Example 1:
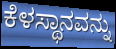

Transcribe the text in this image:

ಕೆಳಸ್ಥಾನವನ್ನು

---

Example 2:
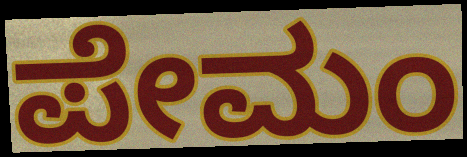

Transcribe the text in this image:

ಪೇಮಂ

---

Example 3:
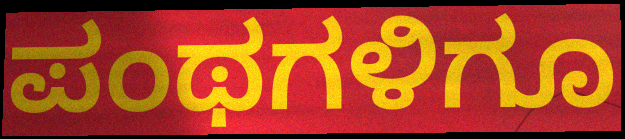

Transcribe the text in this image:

ಪಂಥಗಳಿಗೂ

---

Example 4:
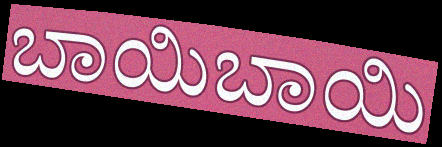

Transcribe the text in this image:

ಬಾಯಿಬಾಯಿ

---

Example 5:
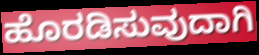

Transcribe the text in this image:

ಹೊರಡಿಸುವುದಾಗಿ